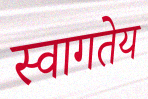
स्वागतेय